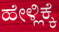
ಹೇಳ್ಲಿಕ್ಕೆ